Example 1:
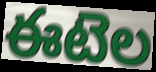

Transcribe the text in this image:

ఈటెల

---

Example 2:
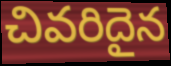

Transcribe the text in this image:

చివరిదైన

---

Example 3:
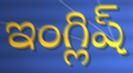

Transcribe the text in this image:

ఇంగ్లిష్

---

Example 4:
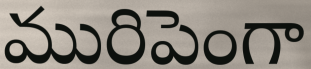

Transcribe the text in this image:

మురిపెంగా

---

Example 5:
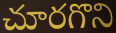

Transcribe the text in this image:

చూరగొని